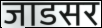
जाडसर